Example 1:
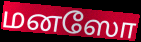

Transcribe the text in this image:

மனஸோ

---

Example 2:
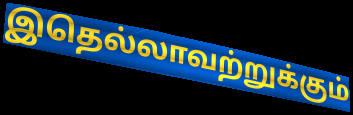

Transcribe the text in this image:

இதெல்லாவற்றுக்கும்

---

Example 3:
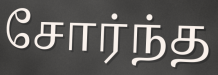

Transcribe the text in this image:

சோர்ந்த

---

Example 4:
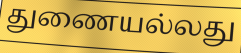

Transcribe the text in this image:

துணையல்லது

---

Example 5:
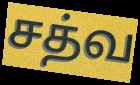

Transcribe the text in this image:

சத்வ